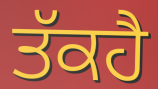
ਤੱਕਹੈ